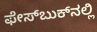
ಫೇಸ್‌ಬುಕ್‌ನಲ್ಲಿ